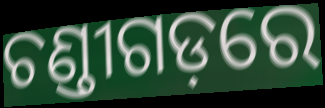
ଚଣ୍ଡୀଗଡ଼ରେ